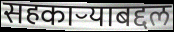
सहकाऱ्याबद्दल